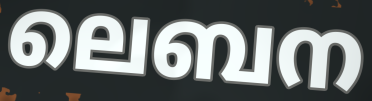
ലെബന